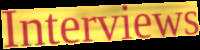
Interviews